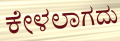
ಕೇಳಲಾಗದು